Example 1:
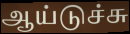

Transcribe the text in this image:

ஆய்டுச்சு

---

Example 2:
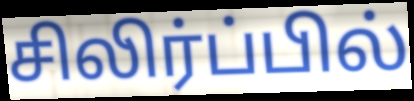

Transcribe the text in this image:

சிலிர்ப்பில்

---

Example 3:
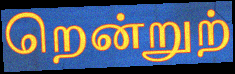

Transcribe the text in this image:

றென்றுற்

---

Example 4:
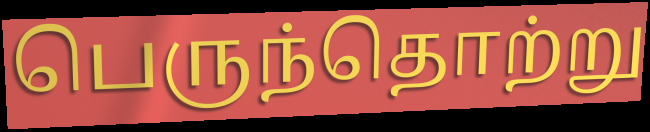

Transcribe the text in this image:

பெருந்தொற்று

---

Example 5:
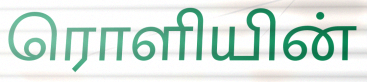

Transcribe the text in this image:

ரொளியின்